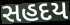
સહદય